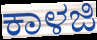
ಕಾಳಜಿ